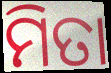
ମିତା